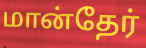
மான்தேர்